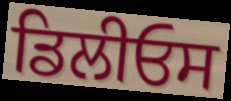
ਡਿਲੀਓਸ